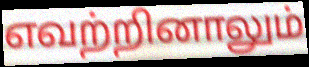
எவற்றினாலும்